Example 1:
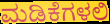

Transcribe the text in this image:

ಮಡಿಕೆಗಳಲಿ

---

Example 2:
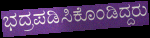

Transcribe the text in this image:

ಭದ್ರಪಡಿಸಿಕೊಂಡಿದ್ದರು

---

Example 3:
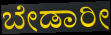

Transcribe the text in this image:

ಬೇಡಾರೀ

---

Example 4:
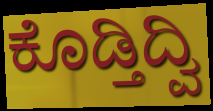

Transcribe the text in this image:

ಕೊಡ್ತಿದ್ವಿ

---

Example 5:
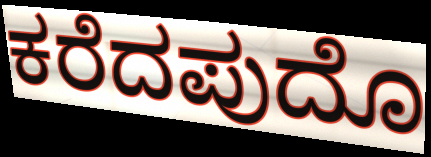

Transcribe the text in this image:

ಕರೆದಪುದೊ